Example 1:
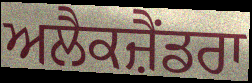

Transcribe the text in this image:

ਅਲੈਕਜ਼ੈਂਡਰਾ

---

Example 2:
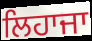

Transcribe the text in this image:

ਲਿਹਾਜਾ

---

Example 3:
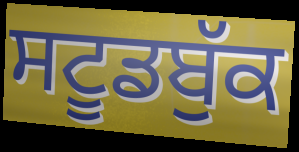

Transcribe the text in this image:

ਸਟੂਡਬੁੱਕ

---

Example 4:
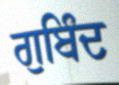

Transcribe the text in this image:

ਗੁਬਿੰਦ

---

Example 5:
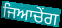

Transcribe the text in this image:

ਜਿਆਚੇਂਗ